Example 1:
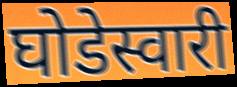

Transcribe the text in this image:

घोडेस्वारी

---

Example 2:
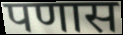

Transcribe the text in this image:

पणास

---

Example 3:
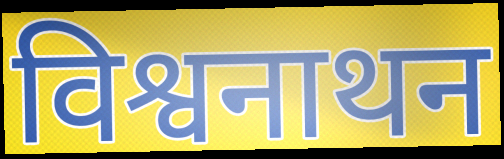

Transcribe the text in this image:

विश्वनाथन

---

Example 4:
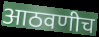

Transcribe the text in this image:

आठवणीच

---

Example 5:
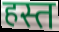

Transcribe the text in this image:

हस्त